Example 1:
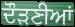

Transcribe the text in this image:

ਦੌੜਣੀਆਂ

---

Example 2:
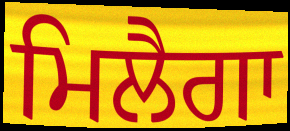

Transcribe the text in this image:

ਮਿਲੈਗਾ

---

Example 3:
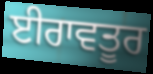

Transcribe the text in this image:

ਈਰਾਵਤੂਰ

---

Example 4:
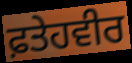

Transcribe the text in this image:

ਫ਼ਤੇਹਵੀਰ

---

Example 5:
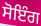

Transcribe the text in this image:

ਸੋਇੰਗ